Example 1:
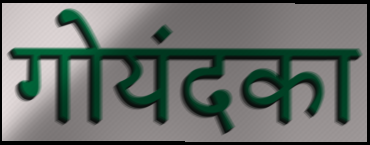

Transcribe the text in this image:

गोयंदका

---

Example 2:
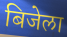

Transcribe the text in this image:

बिजेला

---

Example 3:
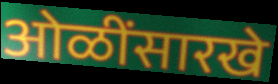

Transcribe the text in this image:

ओळींसारखे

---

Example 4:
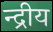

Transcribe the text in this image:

न्द्रीय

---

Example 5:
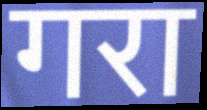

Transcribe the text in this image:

गरा